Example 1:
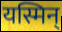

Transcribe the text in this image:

यस्मिन्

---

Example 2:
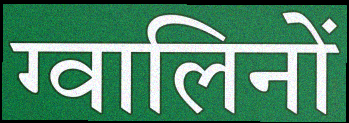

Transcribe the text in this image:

ग्वालिनों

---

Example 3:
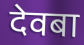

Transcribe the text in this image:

देवबा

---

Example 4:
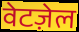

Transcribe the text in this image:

वेटज़ेल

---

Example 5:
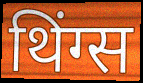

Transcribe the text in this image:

थिंग्स